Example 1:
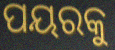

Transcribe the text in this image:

ପୟରକୁ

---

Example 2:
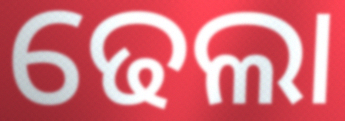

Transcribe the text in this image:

ଢେଲା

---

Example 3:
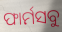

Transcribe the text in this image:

ଫାର୍ମସବୁ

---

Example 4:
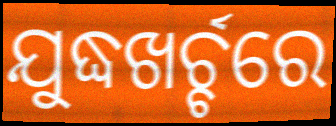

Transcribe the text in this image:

ଯୁଦ୍ଧଖର୍ଚ୍ଚରେ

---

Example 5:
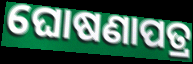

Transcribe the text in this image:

ଘୋଷଣାପତ୍ର